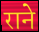
राने